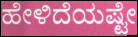
ಹೇಳಿದೆಯಷ್ಟೇ